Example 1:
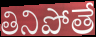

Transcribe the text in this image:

తినిపోతే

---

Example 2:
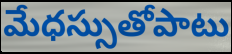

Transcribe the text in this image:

మేధస్సుతోపాటు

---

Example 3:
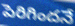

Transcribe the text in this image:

పెరిగిందనే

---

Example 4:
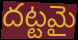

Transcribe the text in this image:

దట్టమై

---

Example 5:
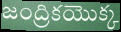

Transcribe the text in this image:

జంద్రికయొక్క